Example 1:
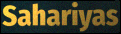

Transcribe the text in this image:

Sahariyas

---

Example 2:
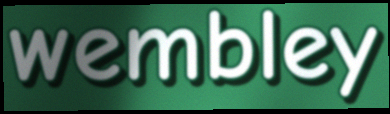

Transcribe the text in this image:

wembley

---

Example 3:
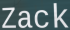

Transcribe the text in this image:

Zack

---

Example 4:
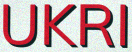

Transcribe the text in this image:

UKRI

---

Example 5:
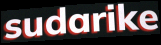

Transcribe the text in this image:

sudarike